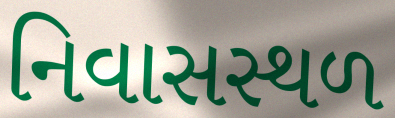
નિવાસસ્થળ